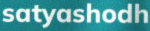
satyashodh